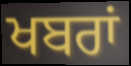
ਖਬਰਾਂ